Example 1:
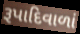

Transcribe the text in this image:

રૂપાદિવાળાં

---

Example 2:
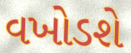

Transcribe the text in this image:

વખોડશે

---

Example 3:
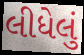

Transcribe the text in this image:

લીધેલું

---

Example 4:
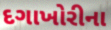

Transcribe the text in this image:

દગાખોરીના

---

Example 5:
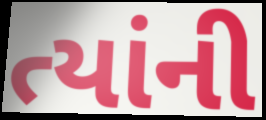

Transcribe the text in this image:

ત્યાંની